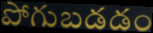
పోగుబడడం